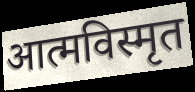
आत्मविस्मृत